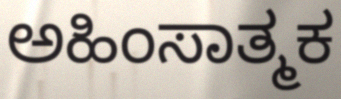
ಅಹಿಂಸಾತ್ಮಕ